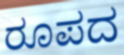
ರೂಪದ